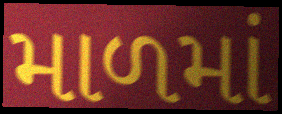
માળમાં